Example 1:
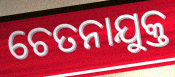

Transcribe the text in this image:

ଚେତନାଯୁକ୍ତ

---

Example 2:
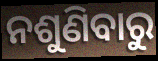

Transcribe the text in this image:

ନଶୁଣିବାରୁ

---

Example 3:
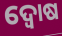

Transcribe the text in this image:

ଦ୍ୱୋଷ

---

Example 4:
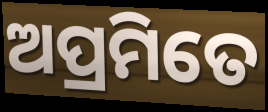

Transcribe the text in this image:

ଅପ୍ରମିତେ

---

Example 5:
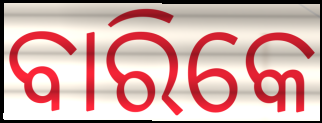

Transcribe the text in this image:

ବାରିକେ